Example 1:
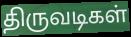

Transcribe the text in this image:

திருவடிகள்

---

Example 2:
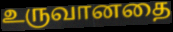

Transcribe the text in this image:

உருவானதை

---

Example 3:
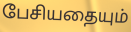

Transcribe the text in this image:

பேசியதையும்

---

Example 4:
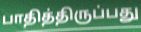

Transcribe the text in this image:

பாதித்திருப்பது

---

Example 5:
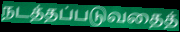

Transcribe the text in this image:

நடத்தப்படுவதைத்